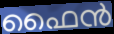
ഫൈൻ